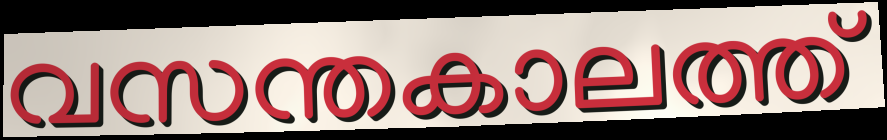
വസന്തകാലത്ത്